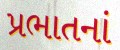
પ્રભાતનાં